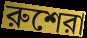
রুশেরা